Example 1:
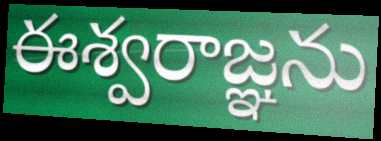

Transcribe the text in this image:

ఈశ్వరాజ్ఞను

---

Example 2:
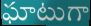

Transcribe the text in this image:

ఘాటుగా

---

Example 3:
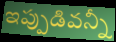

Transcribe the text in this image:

ఇప్పుడివన్నీ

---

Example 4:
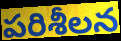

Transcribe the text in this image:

పరిశీలన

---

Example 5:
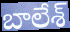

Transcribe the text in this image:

బాలేశ్